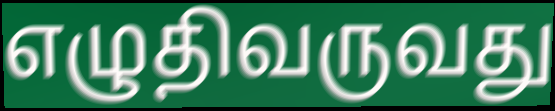
எழுதிவருவது